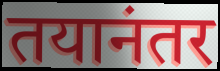
तयानंतर